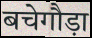
बचेगौड़ा